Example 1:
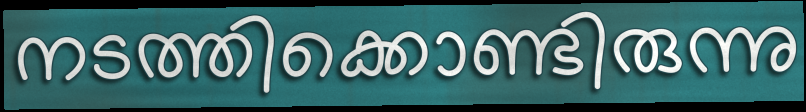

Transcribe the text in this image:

നടത്തിക്കൊണ്ടിരുന്നു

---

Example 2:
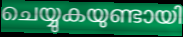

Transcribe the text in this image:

ചെയ്യുകയുണ്ടായി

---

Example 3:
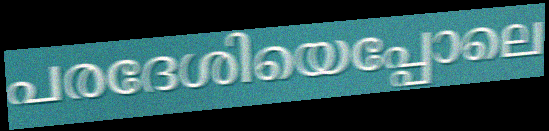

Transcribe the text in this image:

പരദേശിയെപ്പോലെ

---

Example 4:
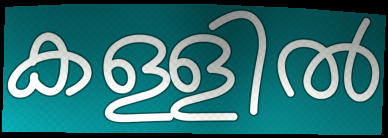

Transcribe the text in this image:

കള്ളിൽ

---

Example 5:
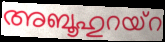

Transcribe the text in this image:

അബൂഹുറയ്റ